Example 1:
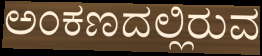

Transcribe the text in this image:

ಅಂಕಣದಲ್ಲಿರುವ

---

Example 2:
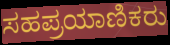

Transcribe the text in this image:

ಸಹಪ್ರಯಾಣಿಕರು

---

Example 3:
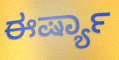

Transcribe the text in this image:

ಈರ್ಷ್ಯಾ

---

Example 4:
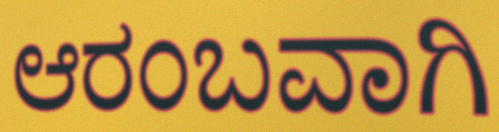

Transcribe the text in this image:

ಆರಂಬವಾಗಿ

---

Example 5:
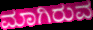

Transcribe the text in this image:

ಮಾಗಿರುವ